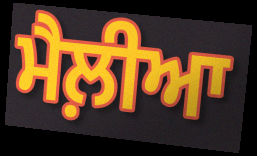
ਮੈਲ਼ੀਆ